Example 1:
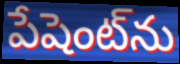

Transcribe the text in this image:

పేషెంట్‌ను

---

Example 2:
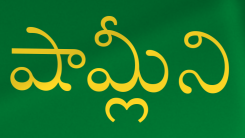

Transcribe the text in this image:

షామ్లీని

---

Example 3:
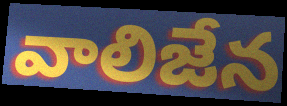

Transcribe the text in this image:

వాలిజేన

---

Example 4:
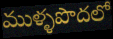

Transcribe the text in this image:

ముళ్ళపొదలో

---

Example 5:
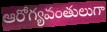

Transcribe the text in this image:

ఆరోగ్యవంతులుగా